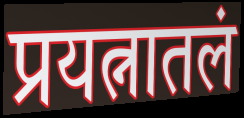
प्रयत्नातलं